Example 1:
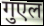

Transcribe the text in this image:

गुएल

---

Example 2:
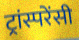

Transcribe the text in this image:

ट्रांस्परेंसी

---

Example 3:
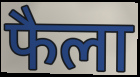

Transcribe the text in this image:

फैला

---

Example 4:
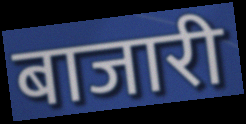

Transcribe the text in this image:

बाजारी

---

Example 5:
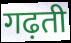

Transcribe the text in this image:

गढ़ती